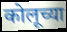
कोलूच्या